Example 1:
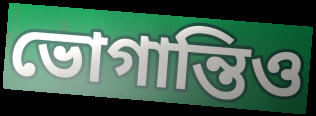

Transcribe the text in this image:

ভোগান্তিও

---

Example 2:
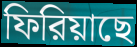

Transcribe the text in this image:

ফিরিয়াছে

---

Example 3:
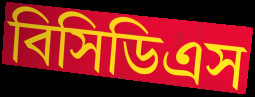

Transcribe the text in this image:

বিসিডিএস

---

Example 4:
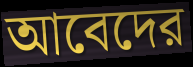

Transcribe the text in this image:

আবেদের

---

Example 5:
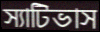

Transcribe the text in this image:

স্যাটিভাস